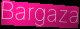
Bargaza